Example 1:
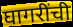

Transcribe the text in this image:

घागरींची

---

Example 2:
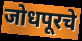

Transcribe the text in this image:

जोधपूरचे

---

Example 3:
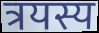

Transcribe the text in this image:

त्रयस्य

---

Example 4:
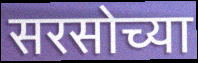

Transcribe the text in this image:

सरसोच्या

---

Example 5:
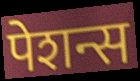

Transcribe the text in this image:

पेशन्स